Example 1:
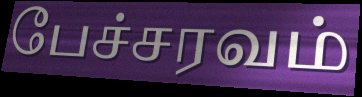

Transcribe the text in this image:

பேச்சரவம்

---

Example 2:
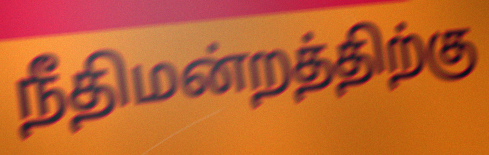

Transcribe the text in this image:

நீதிமன்றத்திற்கு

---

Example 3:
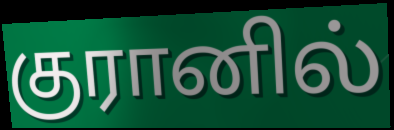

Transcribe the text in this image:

குரானில்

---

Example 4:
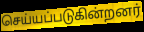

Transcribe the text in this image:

செய்யப்படுகின்றனர்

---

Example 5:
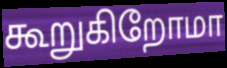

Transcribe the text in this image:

கூறுகிறோமா